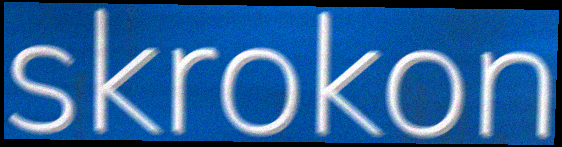
skrokon